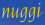
nuggi